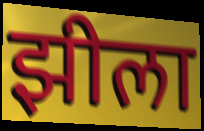
झीला